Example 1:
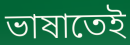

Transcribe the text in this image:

ভাষাতেই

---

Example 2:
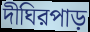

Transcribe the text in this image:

দীঘিরপাড়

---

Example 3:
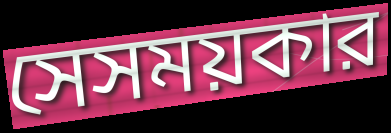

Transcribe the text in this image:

সেসময়কার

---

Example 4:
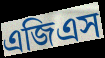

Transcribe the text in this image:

এজিএস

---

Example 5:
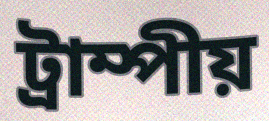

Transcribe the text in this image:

ট্রাম্পীয়